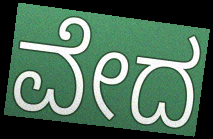
ವೇದ